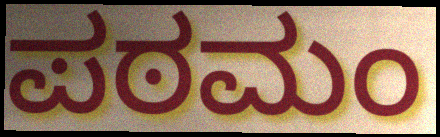
ಪಠಮಂ